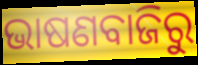
ଭାଷଣବାଜିରୁ